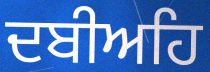
ਦਬੀਅਹਿ